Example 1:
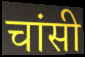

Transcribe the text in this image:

चांसी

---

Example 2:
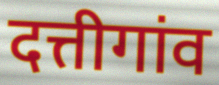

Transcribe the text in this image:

दत्तीगांव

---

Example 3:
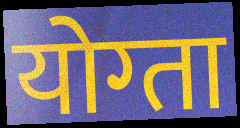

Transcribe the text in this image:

योग्ता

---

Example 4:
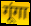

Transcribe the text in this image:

गूंगा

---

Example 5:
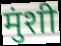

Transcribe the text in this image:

मुंशी